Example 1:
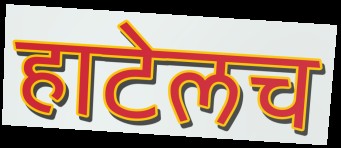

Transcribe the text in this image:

हाटेलच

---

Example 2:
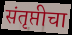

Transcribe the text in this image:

संतृप्तीचा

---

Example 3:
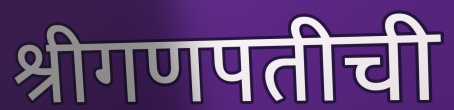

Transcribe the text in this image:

श्रीगणपतीची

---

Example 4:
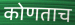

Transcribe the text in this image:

कोणताच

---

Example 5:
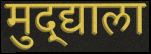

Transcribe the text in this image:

मुद्द्याला